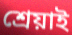
শ্ৰেয়াই